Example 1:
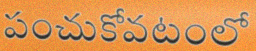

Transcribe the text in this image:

పంచుకోవటంలో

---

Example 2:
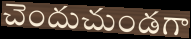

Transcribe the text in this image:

చెందుచుండగా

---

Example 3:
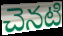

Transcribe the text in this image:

చెనటి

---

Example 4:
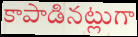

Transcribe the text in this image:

కాపాడినట్లుగా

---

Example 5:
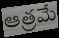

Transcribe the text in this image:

ఆత్రమే